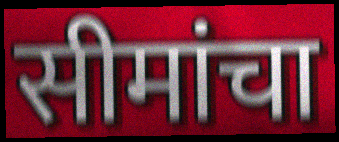
सीमांचा